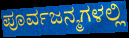
ಪೂರ್ವಜನ್ಮಗಳಲ್ಲಿ